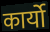
कार्यो